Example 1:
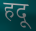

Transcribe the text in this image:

हदू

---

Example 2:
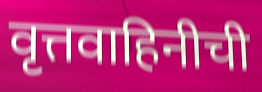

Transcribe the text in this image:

वृत्तवाहिनीची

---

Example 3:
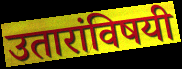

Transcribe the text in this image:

उतारांविषयी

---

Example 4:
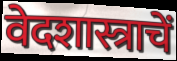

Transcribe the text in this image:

वेदशास्त्राचें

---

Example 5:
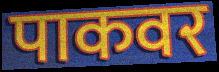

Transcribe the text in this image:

पाकवर